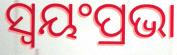
ସ୍ଵୟଂପ୍ରଭା